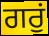
ਗਰੁਂ